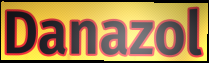
Danazol